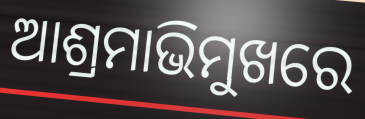
ଆଶ୍ରମାଭିମୁଖରେ